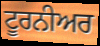
ਟੂਰਨੀਅਰ